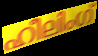
ഹീലിംഗ്